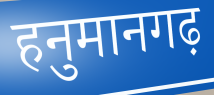
हनुमानगढ़